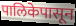
पालिकेपासून